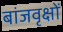
बांजवृक्षों